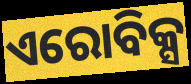
ଏରୋବିକ୍ସ